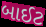
બાઈટ